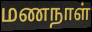
மணநாள்